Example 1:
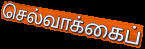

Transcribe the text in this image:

செல்வாக்கைப்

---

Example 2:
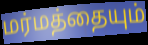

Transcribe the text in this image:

மர்மத்தையும்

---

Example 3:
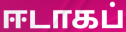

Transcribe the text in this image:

ஈடாகப்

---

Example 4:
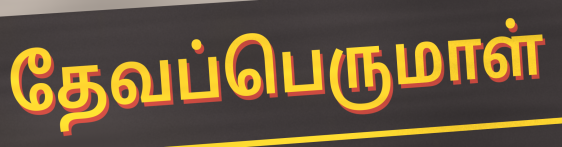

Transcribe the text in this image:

தேவப்பெருமாள்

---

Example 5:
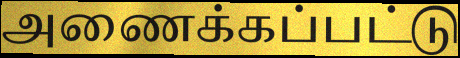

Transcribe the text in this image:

அணைக்கப்பட்டு